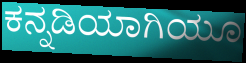
ಕನ್ನಡಿಯಾಗಿಯೂ